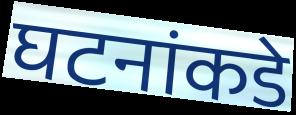
घटनांकडे